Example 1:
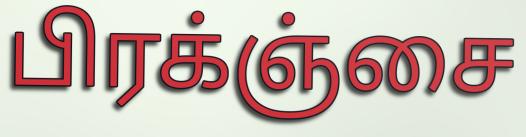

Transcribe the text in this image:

பிரக்ஞ்சை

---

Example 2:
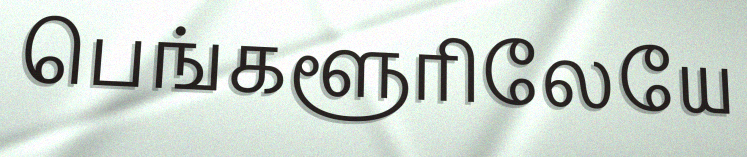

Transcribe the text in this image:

பெங்களூரிலேயே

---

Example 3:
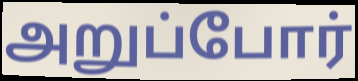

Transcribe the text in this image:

அறுப்போர்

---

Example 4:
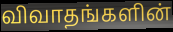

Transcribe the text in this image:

விவாதங்களின்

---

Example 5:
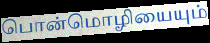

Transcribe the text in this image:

பொன்மொழியையும்